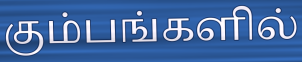
கும்பங்களில்